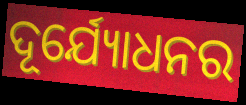
ଦୂର୍ଯ୍ୟୋଧନର